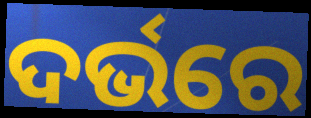
ଦର୍ଭରେ